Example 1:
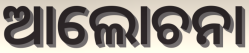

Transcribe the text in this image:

ଆଲୋଚନା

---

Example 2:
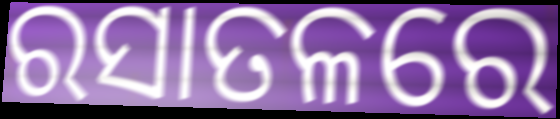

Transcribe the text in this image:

ରସାତଳରେ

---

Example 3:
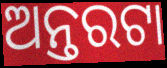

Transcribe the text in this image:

ଅନ୍ତରଟା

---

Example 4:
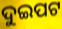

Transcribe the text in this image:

ଦୁଇପଟ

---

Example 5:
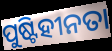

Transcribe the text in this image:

ପୁଷ୍ଟିହୀନତା